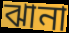
ঝানা